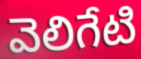
వెలిగేటి